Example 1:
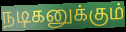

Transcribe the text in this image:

நடிகனுக்கும்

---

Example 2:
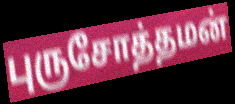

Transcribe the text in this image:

புருசோத்தமன்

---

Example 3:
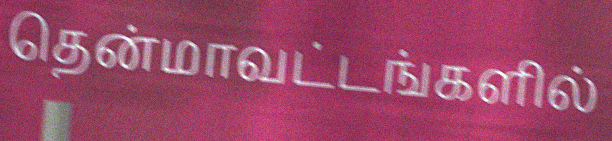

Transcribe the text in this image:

தென்மாவட்டங்களில்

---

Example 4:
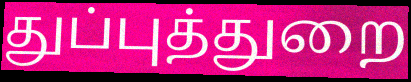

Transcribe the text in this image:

துப்புத்துறை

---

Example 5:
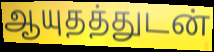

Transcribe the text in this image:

ஆயுதத்துடன்